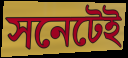
সনেটেই